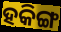
ହକିଙ୍ଗ